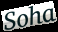
Soha